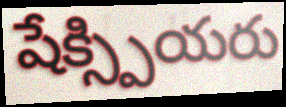
షేక్స్పియరు